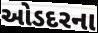
ઓડદરના